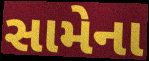
સામેના